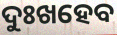
ଦୁଃଖହେବ